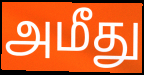
அமீது